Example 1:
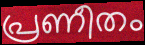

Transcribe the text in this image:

പ്രണീതം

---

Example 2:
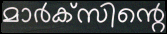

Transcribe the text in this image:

മാർക്‌സിന്റെ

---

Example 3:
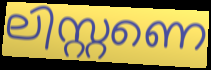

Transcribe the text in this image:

ലിസ്റ്റണെ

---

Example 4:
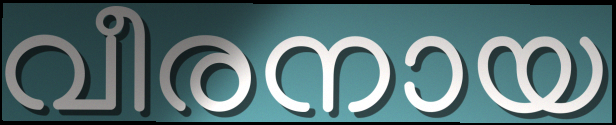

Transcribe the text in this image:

വീരനായ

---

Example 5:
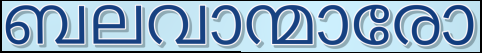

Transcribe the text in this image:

ബലവാന്മാരോ